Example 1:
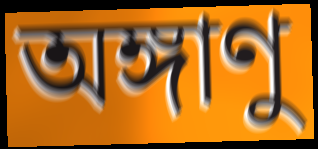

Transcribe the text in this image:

অঙ্গাণু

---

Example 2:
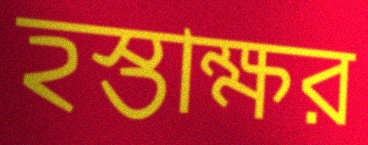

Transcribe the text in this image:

হস্তাক্ষর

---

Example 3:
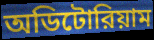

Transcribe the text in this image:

অডিটোরিয়াম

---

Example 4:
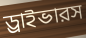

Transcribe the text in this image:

ড্রাইভারস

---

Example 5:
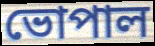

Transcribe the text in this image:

ভোপাল